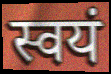
स्वयं